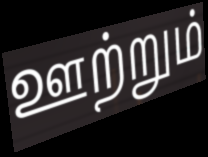
ஊற்றும்